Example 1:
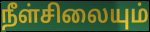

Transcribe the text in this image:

நீள்சிலையும்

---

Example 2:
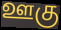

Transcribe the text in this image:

ஊகு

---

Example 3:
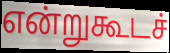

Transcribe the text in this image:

என்றுகூடச்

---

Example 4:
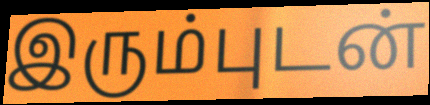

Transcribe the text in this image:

இரும்புடன்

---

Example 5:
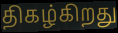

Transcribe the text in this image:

திகழ்கிறது